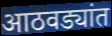
आठवड्यांत